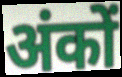
अंकों